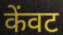
केंवट